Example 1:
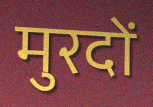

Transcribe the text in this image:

मुरदों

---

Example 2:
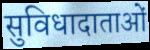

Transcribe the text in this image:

सुविधादाताओं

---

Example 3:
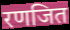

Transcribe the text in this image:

रणजित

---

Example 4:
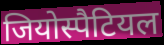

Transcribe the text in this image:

जियोस्पैटियल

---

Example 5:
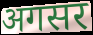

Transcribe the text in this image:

अगसर